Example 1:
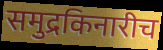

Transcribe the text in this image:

समुद्रकिनारीच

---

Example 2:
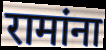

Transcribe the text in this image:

रामांना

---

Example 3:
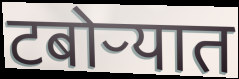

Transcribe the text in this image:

टबोऱ्यात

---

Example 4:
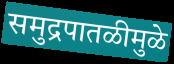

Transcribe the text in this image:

समुद्रपातळीमुळे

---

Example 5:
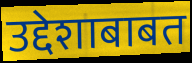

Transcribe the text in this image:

उद्देशाबाबत